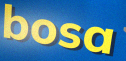
bosa